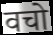
वचो